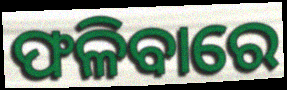
ଫଳିବାରେ